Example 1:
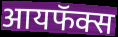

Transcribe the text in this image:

आयफॅक्स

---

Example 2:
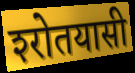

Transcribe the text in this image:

श्रोतयासी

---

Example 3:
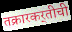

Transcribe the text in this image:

तक्रारकर्तीची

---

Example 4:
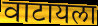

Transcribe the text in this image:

वाटायला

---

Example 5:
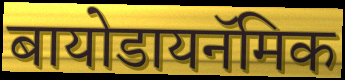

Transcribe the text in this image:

बायोडायनॅमिक